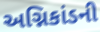
અગ્નિકાંડની